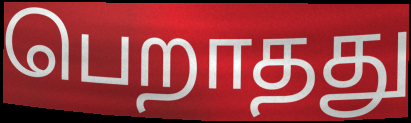
பெறாதது